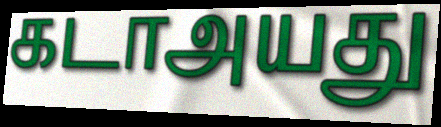
கடாஅயது